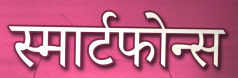
स्मार्टफोन्स